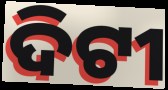
ଦିଟୀ